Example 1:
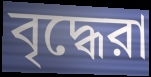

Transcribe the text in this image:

বৃদ্ধেরা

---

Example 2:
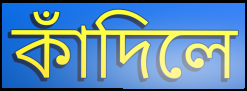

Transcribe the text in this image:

কাঁদিলে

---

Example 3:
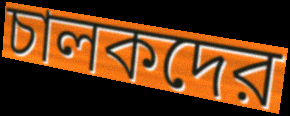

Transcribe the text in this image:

চালকদের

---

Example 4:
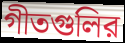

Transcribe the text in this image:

গীতগুলির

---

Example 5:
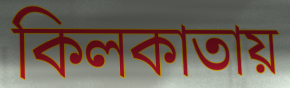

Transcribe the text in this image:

কিলকাতায়